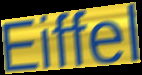
Eiffel